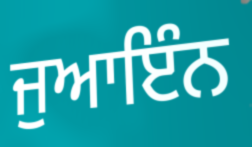
ਜੁਆਇੰਨ